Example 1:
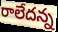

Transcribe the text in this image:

రాలేదన్న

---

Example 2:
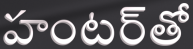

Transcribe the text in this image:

హంటర్‌తో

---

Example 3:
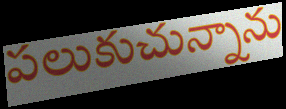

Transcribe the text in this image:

పలుకుచున్నాను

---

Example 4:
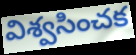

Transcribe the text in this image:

విశ్వసించక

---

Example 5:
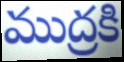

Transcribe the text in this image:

ముద్రకి